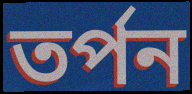
তর্পন